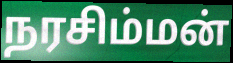
நரசிம்மன்